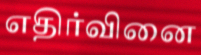
எதிர்வினை